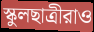
স্কুলছাত্রীরাও